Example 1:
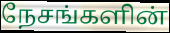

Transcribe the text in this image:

நேசங்களின்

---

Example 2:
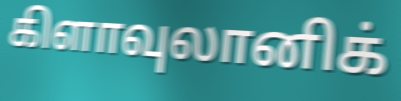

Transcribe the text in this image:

கிளாவுலானிக்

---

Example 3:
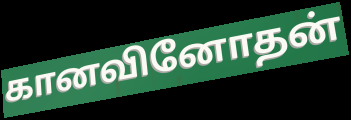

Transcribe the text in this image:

கானவினோதன்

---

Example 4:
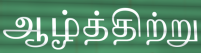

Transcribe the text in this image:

ஆழ்த்திற்று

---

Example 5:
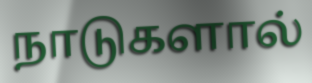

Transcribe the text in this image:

நாடுகளால்